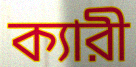
ক্যারী